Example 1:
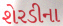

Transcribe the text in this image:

શેરડીના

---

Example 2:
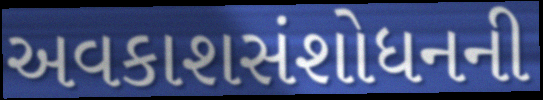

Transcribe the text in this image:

અવકાશસંશોધનની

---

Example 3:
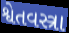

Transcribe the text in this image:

શ્વેતવસ્ત્રા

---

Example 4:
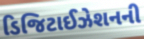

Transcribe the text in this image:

ડિજિટાઈઝેશનની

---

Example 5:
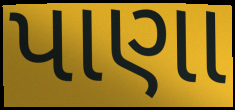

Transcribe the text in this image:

પાણા